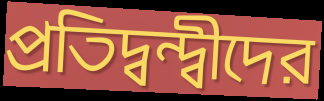
প্রতিদ্বন্দ্বীদের